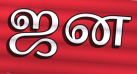
ஜன